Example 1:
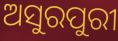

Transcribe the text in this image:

ଅସୁରପୁରୀ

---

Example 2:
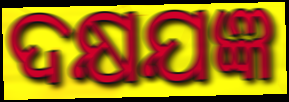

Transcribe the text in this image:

ଦକ୍ଷଯଜ୍ଞ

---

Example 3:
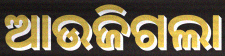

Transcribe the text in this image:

ଆଉଜିଗଲା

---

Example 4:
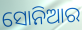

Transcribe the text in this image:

ସୋନିଆର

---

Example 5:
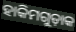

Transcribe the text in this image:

ହାକିମଗୁଡ଼ାକ